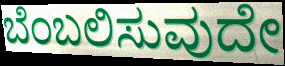
ಬೆಂಬಲಿಸುವುದೇ